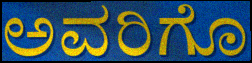
ಅವರಿಗೊ